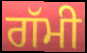
ਗੱਮੀ